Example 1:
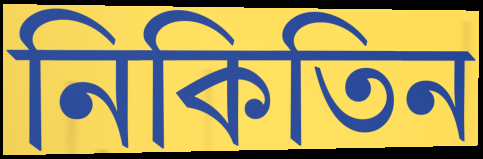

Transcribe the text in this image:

নিকিতিন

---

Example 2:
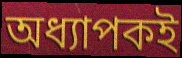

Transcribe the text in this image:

অধ্যাপকই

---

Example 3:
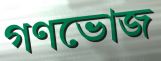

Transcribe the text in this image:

গণভোজ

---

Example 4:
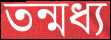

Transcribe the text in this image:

তন্মধ্য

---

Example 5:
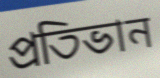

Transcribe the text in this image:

প্রতিভান